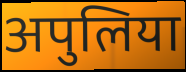
अपुलिया